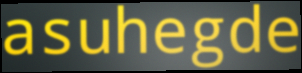
asuhegde